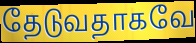
தேடுவதாகவே